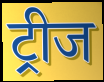
ट्रीज